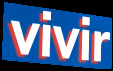
vivir